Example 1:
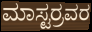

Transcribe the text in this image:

ಮಾಸ್ಟರ್ರವರ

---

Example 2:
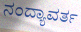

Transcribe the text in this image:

ನಂದ್ಯಾವರ್ತ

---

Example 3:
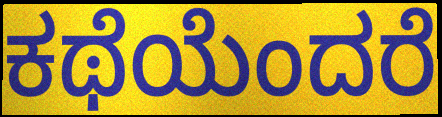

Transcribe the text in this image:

ಕಥೆಯೆಂದರೆ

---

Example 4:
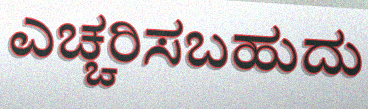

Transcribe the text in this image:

ಎಚ್ಚರಿಸಬಹುದು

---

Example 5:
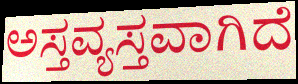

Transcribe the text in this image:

ಅಸ್ತವ್ಯಸ್ತವಾಗಿದೆ